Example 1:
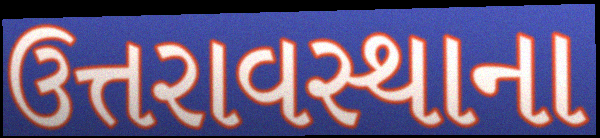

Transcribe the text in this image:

ઉત્તરાવસ્થાના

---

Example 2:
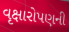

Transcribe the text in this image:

વૃક્ષારોપણની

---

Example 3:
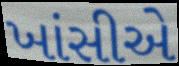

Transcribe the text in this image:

ખાંસીએ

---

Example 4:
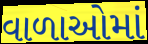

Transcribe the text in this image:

વાળાઓમાં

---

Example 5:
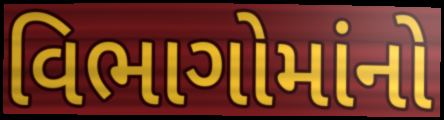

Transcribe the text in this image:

વિભાગોમાંનો